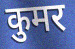
कुमर